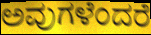
ಅವುಗಳೆಂದರೆ